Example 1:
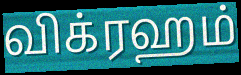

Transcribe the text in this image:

விக்ரஹம்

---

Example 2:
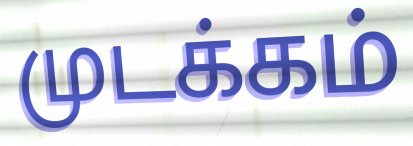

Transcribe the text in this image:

முடக்கம்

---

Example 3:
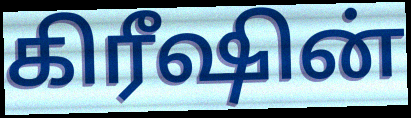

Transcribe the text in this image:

கிரீஷின்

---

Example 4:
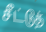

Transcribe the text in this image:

சீட்டுத்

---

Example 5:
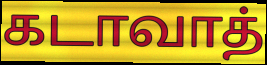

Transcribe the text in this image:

கடாவாத்